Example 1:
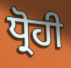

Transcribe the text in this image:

ਧ੍ਰੋਹੀ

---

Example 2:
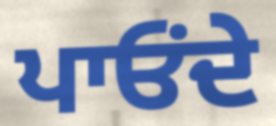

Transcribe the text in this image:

ਪਾਓਂਦੇ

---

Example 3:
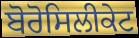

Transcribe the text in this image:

ਬੋਰੋਸਿਲੀਕੇਟ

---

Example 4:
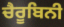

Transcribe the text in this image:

ਚੈਰੂਬਿਨੀ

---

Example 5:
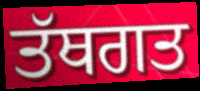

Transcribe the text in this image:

ਤੱਥਗਤ